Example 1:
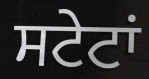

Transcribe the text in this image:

ਸਟੇਟਾਂ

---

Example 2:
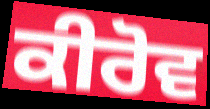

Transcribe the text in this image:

ਕੀਰੋਵ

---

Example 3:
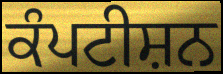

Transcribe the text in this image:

ਕੰਪਟੀਸ਼ਨ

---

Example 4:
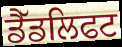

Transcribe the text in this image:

ਡੈੱਡਲਿਫਟ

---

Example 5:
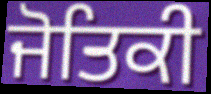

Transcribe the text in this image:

ਜੋਤਿਕੀ